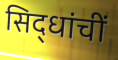
सिद्धांचीं